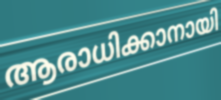
ആരാധിക്കാനായി